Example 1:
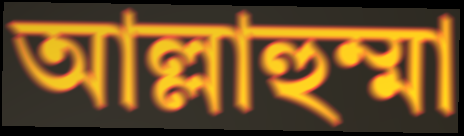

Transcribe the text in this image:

আল্লাহুম্মা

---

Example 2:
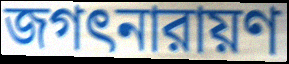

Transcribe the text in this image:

জগৎনারায়ণ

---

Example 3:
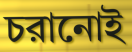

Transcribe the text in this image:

চরানোই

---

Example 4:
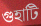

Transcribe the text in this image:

গুহাটি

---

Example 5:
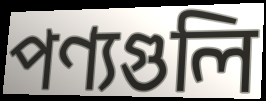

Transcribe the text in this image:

পণ্যগুলি